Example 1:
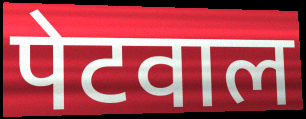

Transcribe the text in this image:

पेटवाल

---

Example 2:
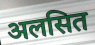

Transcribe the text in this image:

अलसित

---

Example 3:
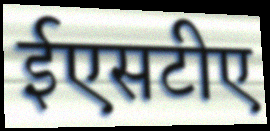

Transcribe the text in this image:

ईएसटीए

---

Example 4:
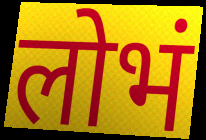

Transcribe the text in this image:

लोभं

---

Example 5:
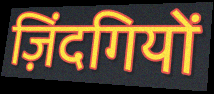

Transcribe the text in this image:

ज़िंदगियों